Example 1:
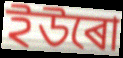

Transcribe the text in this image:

ইউৰো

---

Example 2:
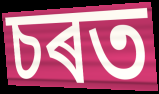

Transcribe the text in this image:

চৰত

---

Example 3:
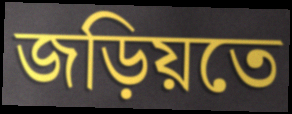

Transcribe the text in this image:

জড়িয়তে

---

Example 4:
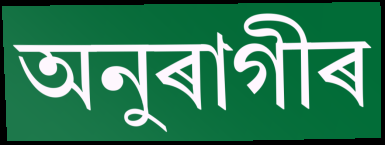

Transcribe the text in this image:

অনুৰাগীৰ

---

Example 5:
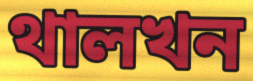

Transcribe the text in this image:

থালখন